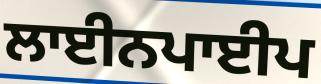
ਲਾਈਨਪਾਈਪ